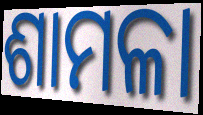
ଶାମଳା